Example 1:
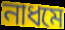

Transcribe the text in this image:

নাধমে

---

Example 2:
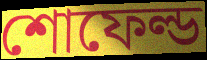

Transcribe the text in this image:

শোফেল্ড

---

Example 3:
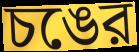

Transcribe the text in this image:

চঙের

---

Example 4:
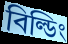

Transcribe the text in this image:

বিল্ডিং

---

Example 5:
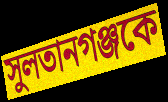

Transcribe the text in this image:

সুলতানগঞ্জকে